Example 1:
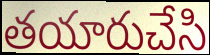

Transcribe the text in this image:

తయారుచేసి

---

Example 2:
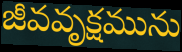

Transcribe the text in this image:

జీవవృక్షమును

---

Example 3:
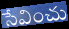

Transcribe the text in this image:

సేవించు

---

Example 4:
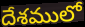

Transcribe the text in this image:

దేశములో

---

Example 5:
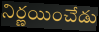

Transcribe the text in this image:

నిర్ణయించేడు